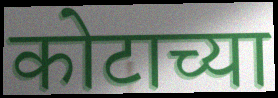
कोटाच्या